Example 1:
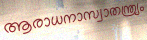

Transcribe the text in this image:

ആരാധനാസ്വാതന്ത്ര്യം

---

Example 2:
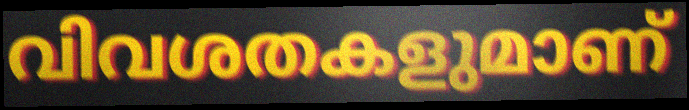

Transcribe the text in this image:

വിവശതകളുമാണ്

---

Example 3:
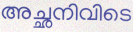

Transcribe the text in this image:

അച്ഛനിവിടെ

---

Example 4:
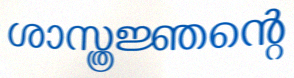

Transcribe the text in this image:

ശാസ്ത്രജ്ഞന്റെ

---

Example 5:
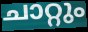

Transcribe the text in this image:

ചാറ്റും